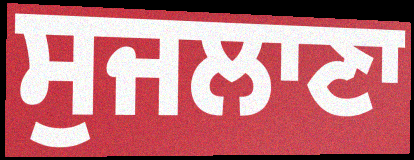
ਸੁਜਲਾਣਾ